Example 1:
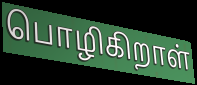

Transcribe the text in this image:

பொழிகிறாள்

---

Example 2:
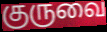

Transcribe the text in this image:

குருவை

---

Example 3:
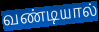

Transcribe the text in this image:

வண்டியால்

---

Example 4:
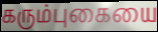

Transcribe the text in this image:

கரும்புகையை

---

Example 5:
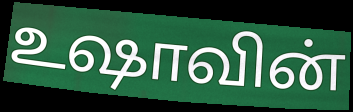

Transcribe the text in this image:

உஷாவின்